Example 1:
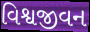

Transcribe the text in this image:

વિશ્વજીવન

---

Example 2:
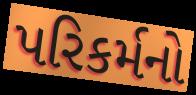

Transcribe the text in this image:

પરિકર્મનો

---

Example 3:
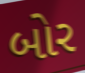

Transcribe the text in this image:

બોર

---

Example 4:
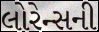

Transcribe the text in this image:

લોરેન્સની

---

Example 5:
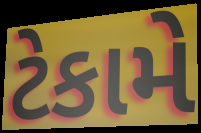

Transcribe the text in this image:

ટેકામે